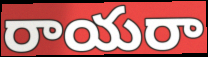
రాయరా